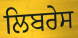
ਲਿਬਰੇਸ